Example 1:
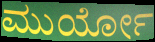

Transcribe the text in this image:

ಮುರ್ಯೋ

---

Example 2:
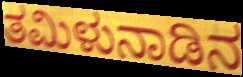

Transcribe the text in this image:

ತಮಿಳುನಾಡಿನ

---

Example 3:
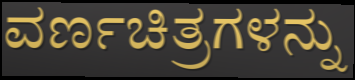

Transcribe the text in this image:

ವರ್ಣಚಿತ್ರಗಳನ್ನು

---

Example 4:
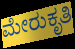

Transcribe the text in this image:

ಮೇರುಕೃತಿ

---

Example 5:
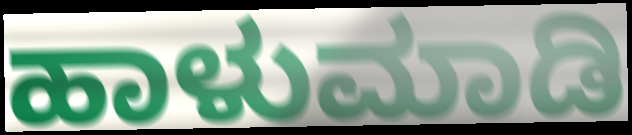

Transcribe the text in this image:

ಹಾಳುಮಾಡಿ